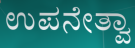
ಉಪನೇತ್ವಾ